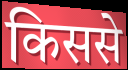
किससे